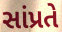
સાંપ્રતે